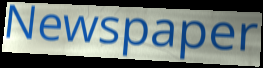
Newspaper